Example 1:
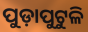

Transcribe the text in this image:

ପୁଡ଼ାପୁଟୁଳି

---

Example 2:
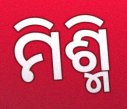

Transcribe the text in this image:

ମିଶ୍ମି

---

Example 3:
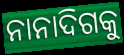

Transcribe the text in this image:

ନାନାଦିଗକୁ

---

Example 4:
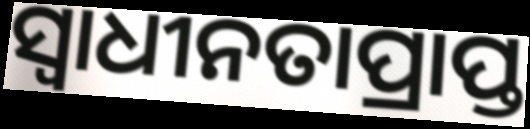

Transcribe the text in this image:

ସ୍ବାଧୀନତାପ୍ରାପ୍ତ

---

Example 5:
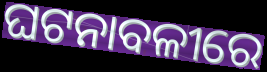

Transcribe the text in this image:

ଘଟନାବଳୀରେ